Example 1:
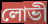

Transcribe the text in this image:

লোভী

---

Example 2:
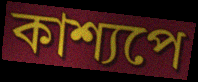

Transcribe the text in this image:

কাশ্যপে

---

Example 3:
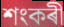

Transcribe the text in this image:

শংকৰী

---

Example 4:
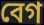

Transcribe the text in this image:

বেগ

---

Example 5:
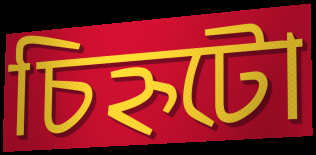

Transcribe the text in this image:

চিহ্নটো